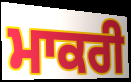
ਮਾਕਰੀ